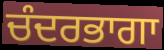
ਚੰਦਰਭਾਗਾ